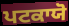
ਪਟਕਾਯੋ